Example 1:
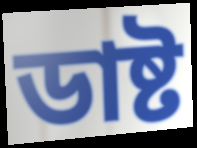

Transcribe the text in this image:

ডাষ্ট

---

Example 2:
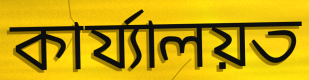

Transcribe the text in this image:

কাৰ্য্যালয়ত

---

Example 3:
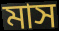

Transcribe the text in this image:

মাস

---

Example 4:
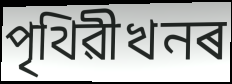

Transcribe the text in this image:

পৃথিৱীখনৰ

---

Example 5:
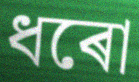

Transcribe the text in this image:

ধৰো